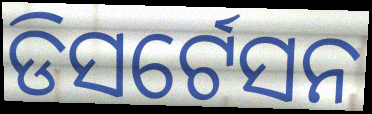
ଡିସର୍ଟେସନ